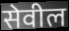
सेवील